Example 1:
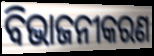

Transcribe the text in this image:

ବିଭାଜନୀକରଣ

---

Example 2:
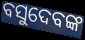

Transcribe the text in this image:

ବସୁଦେବଙ୍କ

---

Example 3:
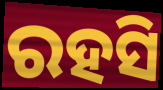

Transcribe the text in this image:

ରହସି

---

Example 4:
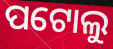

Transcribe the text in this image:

ପଟୋଲୁ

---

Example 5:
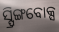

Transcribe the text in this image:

ସ୍ପ୍ରିଙ୍ଗବୋକ୍ସ